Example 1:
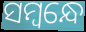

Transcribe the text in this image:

ସମ୍ବନ୍ଧେ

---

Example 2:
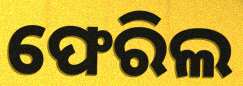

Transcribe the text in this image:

ଫେରିଲ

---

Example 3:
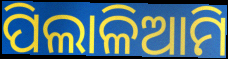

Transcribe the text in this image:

ପିଲାଳିଆମି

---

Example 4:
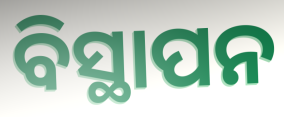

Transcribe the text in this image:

ବିସ୍ଥାପନ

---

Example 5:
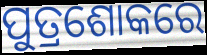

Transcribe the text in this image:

ପୁତ୍ରଶୋକରେ